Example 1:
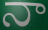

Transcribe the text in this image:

నా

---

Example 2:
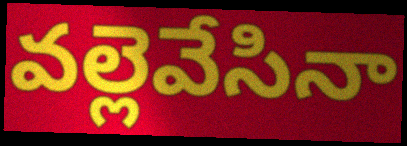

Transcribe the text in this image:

వల్లెవేసినా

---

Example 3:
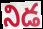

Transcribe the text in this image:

నిడ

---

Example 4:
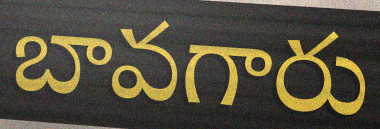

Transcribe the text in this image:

బావగారు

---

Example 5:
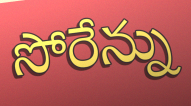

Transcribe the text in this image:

సోరేన్ను